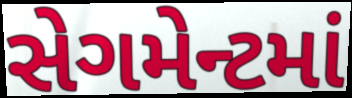
સેગમેન્ટમાં